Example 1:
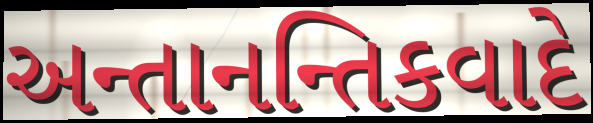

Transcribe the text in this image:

અન્તાનન્તિકવાદે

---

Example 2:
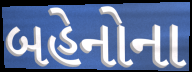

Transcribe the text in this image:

બહેનોના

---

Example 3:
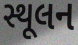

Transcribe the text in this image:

સ્થૂલન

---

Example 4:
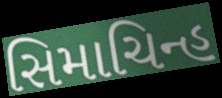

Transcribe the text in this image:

સિમાચિન્હ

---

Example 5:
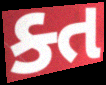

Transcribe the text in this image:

ક્ત